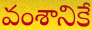
వంశానికే